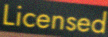
Licensed